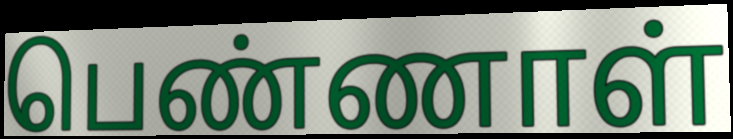
பெண்ணாள்